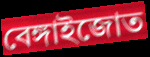
বেঙ্গাইজোত